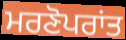
ਮਰਣੋਪਰਾਂਤ